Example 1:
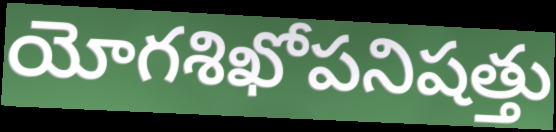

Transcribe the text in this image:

యోగశిఖోపనిషత్తు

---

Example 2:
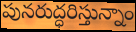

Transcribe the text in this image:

పునరుద్ధరిస్తున్నాం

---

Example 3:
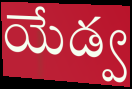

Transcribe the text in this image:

యేడ్వ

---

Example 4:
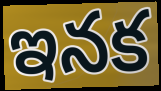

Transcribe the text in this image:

ఇనక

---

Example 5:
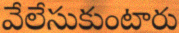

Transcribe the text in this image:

వేలేసుకుంటారు